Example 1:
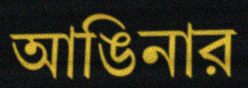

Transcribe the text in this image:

আঙিনার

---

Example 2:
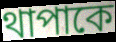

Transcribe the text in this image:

থাপাকে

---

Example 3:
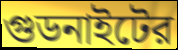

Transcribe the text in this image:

গুডনাইটের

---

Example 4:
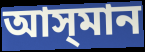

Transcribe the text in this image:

আস্‌মান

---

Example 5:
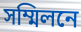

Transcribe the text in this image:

সম্মিলনে